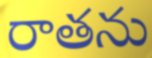
రాతను